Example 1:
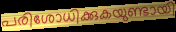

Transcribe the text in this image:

പരിശോധിക്കുകയുണ്ടായി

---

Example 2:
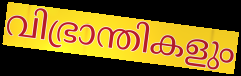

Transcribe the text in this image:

വിഭ്രാന്തികളും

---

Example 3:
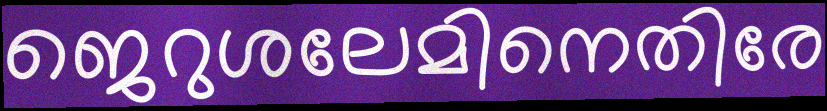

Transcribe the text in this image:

ജെറുശലേമിനെതിരേ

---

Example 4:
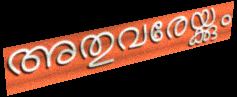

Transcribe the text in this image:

അതുവരേയ്ക്കും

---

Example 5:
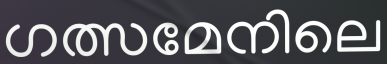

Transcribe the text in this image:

ഗത്സമേനിലെ